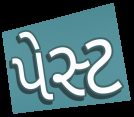
પેસ્ટ